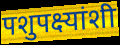
पशुपक्ष्यांशी